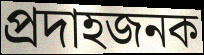
প্রদাহজনক